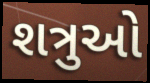
શત્રુઓ